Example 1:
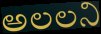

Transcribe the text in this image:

అలలని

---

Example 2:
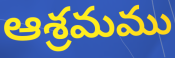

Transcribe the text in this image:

ఆశ్రమము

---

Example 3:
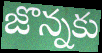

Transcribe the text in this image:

జొన్నకు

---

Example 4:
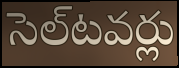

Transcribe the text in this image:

సెల్‌టవర్లు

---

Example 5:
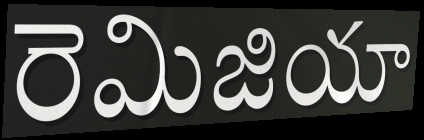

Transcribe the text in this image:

రెమిజియా